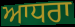
ਆਧਰਾ